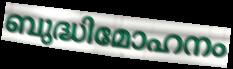
ബുദ്ധിമോഹനം